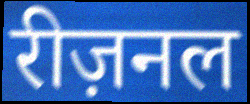
रीज़नल